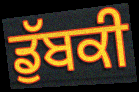
ਡੁੱਬਕੀ